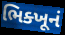
ભિક્ખૂનં